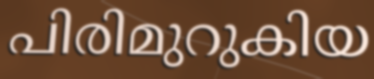
പിരിമുറുകിയ